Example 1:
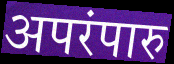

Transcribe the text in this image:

अपरंपारु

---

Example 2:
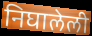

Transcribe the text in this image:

निघालेली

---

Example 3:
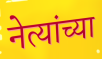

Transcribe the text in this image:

नेत्यांच्या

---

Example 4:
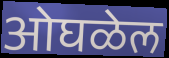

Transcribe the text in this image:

ओघळेल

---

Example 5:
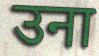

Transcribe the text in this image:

उना